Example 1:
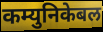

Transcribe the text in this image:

कम्युनिकेबल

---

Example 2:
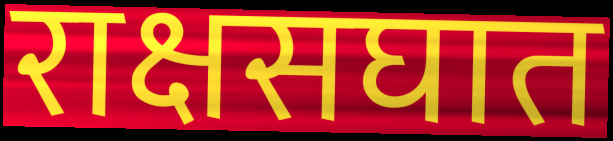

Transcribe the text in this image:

राक्षसघात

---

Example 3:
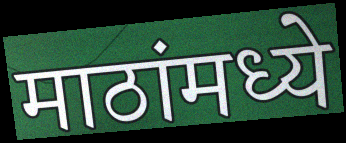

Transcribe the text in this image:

माठांमध्ये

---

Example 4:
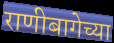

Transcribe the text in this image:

राणीबागेच्या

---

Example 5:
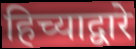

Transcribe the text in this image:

हिच्याद्वारे